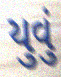
યુવું